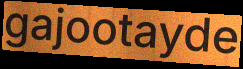
gajootayde